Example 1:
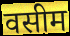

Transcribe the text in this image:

वसीम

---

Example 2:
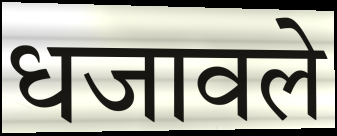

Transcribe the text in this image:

धजावले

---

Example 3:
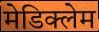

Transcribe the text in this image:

मेडिक्लेम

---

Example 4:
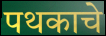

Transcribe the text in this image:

पथकाचे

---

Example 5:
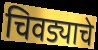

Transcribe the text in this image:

चिवड्याचे